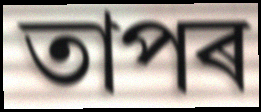
তাপৰ